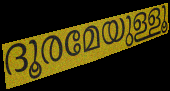
ദൂരമേയുള്ളൂ